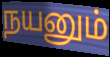
நயனும்